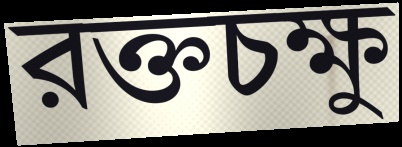
রক্তচক্ষু